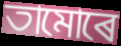
তামোৰে